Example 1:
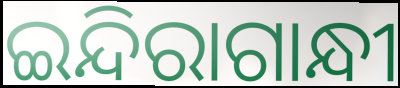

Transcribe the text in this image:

ଇନ୍ଦିରାଗାନ୍ଧୀ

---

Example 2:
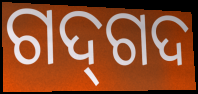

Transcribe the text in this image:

ଗଦ୍‌ଗଦ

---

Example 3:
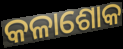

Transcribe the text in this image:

କଳାଶୋକ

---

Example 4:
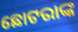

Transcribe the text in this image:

ଛୋଟରାଙ୍କ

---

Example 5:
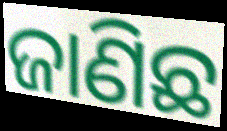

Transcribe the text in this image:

ଜାଣିଛ